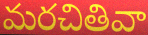
మరచితివా